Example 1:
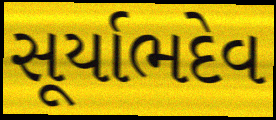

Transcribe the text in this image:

સૂર્યાભદેવ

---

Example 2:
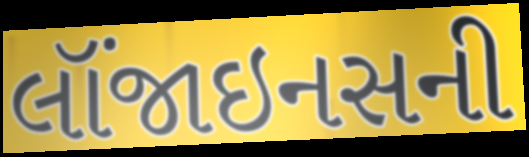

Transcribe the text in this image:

લૉંજાઇનસની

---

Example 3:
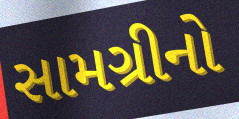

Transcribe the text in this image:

સામગ્રીનો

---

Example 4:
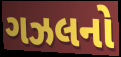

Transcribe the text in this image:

ગઝલનો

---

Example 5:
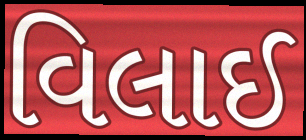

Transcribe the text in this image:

વિલાઈ